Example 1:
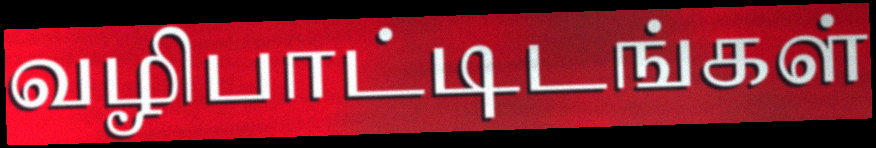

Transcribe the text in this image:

வழிபாட்டிடங்கள்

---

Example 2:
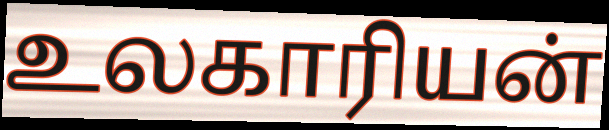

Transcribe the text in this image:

உலகாரியன்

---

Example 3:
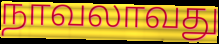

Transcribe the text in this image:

நாவலாவது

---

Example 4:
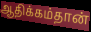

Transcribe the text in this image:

ஆதிக்கம்தான்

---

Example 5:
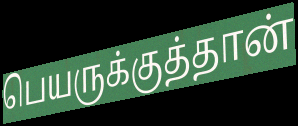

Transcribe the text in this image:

பெயருக்குத்தான்